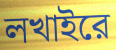
লখাইরে